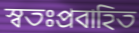
স্বতঃপ্রবাহিত